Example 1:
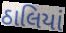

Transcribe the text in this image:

ઠાલિયાં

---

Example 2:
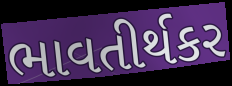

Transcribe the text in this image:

ભાવતીર્થકર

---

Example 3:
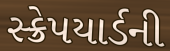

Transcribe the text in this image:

સ્ક્રેપયાર્ડની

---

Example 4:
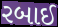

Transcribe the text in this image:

રબાઈ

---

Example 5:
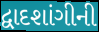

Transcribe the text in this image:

દ્વાદશાંગીની